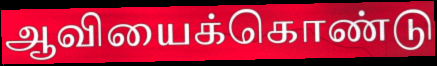
ஆவியைக்கொண்டு